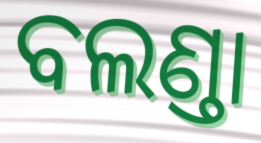
ବଲଣ୍ଡା